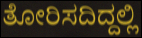
ತೋರಿಸದಿದ್ದಲ್ಲಿ